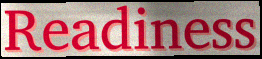
Readiness